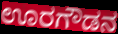
ಊರಗೌಡನ